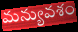
మన్యువశం